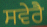
ਸਵੇਰੈ